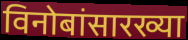
विनोबांसारख्या